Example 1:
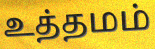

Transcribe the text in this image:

உத்தமம்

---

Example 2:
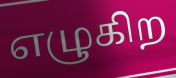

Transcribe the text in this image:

எழுகிற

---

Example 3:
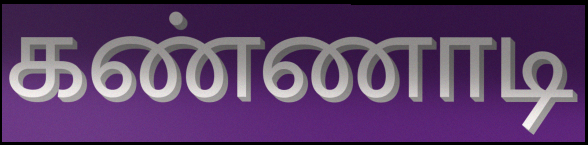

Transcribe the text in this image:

கண்ணாடி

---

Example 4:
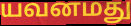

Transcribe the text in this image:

யவனமது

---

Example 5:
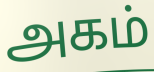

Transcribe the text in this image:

அகம்